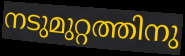
നടുമുറ്റത്തിനു